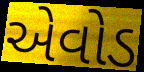
એવોડ